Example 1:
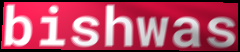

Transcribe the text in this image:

bishwas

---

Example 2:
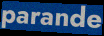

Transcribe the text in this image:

parande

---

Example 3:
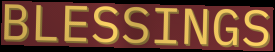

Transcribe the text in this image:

BLESSINGS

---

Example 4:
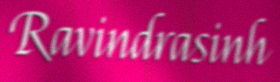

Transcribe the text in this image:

Ravindrasinh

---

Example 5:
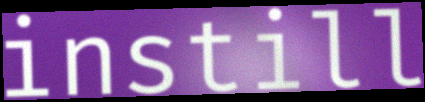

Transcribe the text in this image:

instill